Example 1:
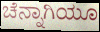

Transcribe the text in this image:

ಚೆನ್ನಾಗಿಯೂ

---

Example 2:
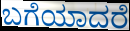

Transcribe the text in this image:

ಬಗೆಯಾದರೆ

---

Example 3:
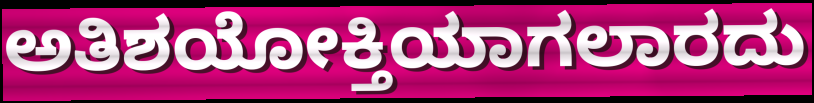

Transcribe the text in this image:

ಅತಿಶಯೋಕ್ತಿಯಾಗಲಾರದು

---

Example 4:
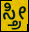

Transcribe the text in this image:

ಸ್ತ್ರೀ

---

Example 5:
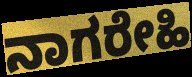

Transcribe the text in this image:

ನಾಗರೇಹಿ